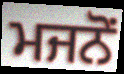
ਮਜਨੋਂ